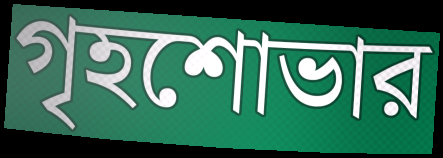
গৃহশোভার